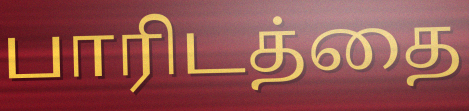
பாரிடத்தை